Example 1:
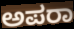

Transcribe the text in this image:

ಅಪರಾ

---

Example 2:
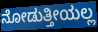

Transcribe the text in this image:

ನೋಡುತ್ತೀಯಲ್ಲ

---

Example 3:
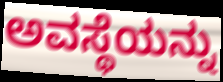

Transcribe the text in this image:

ಅವಸ್ಥೆಯನ್ನು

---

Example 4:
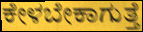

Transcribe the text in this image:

ಕೇಳಬೇಕಾಗುತ್ತೆ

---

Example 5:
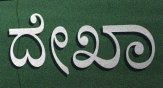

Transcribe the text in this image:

ದೇಖಾ